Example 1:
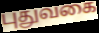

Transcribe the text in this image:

புதுவகை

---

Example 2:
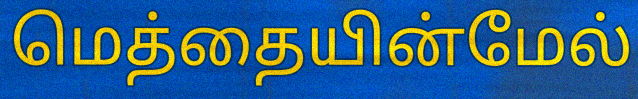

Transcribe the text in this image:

மெத்தையின்மேல்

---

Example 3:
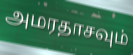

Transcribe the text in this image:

அமரதாசவும்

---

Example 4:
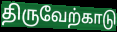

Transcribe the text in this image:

திருவேற்காடு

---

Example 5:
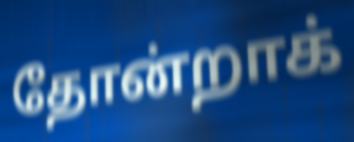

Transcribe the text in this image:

தோன்றாக்